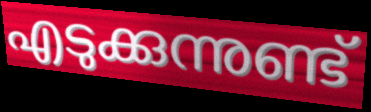
എടുക്കുന്നുണ്ട്